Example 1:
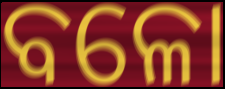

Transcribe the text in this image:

ବଳୋ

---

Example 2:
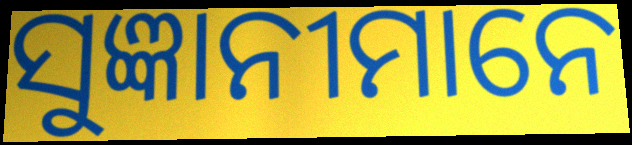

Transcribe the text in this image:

ସୁଜ୍ଞାନୀମାନେ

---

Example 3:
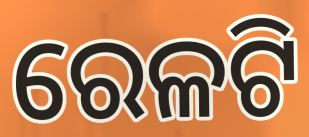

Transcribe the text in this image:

ରେଳଟି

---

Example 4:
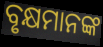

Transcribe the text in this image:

ବୃକ୍ଷମାନଙ୍କ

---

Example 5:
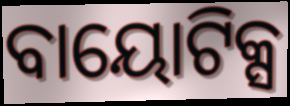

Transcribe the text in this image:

ବାୟୋଟିକ୍ସ